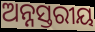
ଅନ୍ନସ୍ତରୀୟ